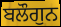
ਬਲੌਗੁਨ